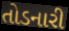
તોડનારી